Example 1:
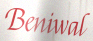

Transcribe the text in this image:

Beniwal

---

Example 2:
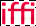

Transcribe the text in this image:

iffi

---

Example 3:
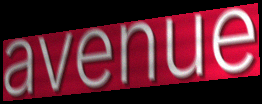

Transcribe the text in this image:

avenue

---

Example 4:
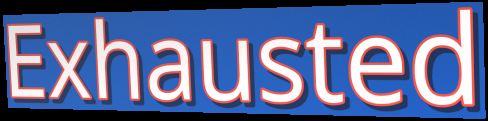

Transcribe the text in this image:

Exhausted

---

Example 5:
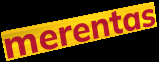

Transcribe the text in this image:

merentas